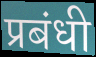
प्रबंधी